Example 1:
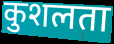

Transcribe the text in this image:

कुशलता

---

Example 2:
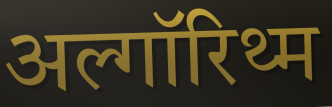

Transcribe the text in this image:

अल्गॉरिथ्म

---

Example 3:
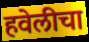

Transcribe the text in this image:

हवेलीचा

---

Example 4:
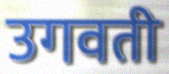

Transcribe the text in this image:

उगवती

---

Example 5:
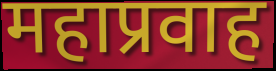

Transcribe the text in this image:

महाप्रवाह